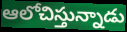
ఆలోచిస్తున్నాడు